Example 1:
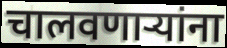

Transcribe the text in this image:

चालवणार्‍यांना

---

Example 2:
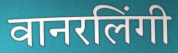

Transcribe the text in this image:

वानरलिंगी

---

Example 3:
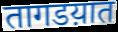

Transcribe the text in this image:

तागडय़ात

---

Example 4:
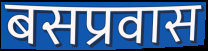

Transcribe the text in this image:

बसप्रवास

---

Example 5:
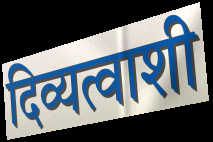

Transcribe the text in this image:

दिव्यत्वाशी